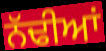
ਨੱਢੀਆਂ